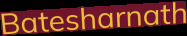
Batesharnath